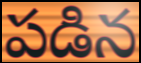
పడిన